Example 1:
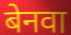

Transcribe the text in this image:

बेनवा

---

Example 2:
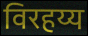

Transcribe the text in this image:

विरहय्य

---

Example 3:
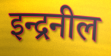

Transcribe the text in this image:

इन्द्रनील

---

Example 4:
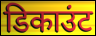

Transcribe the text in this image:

डिकाउंट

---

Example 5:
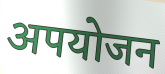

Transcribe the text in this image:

अपयोजन